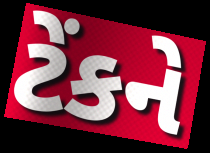
ટેંકને